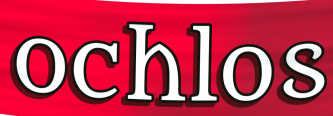
ochlos